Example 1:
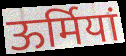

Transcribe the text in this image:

ऊर्मियां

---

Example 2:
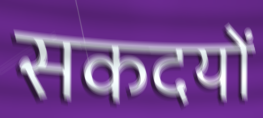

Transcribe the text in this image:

सकदयों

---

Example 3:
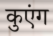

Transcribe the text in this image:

कुएंग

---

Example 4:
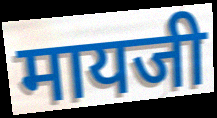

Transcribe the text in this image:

मायजी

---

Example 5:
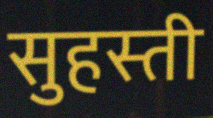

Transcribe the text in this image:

सुहस्ती